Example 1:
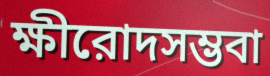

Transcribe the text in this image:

ক্ষীরোদসম্ভবা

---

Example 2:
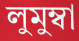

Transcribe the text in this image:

লুমুম্বা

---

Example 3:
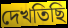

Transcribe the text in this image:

দেখতিছি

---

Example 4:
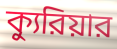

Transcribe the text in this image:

ক্যুরিয়ার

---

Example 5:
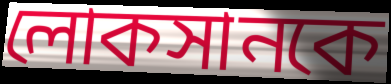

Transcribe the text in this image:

লোকসানকে